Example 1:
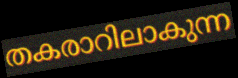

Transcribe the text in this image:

തകരാറിലാകുന്ന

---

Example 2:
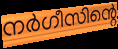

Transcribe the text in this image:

നർഗീസിന്റെ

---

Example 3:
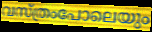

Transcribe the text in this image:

വസ്ത്രംപോലെയും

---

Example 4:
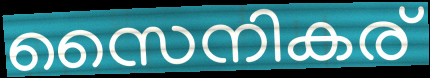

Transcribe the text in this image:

സൈനികര്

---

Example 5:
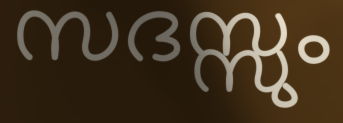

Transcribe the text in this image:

സദസ്സും